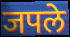
जपले